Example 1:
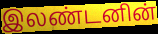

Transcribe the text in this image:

இலண்டனின்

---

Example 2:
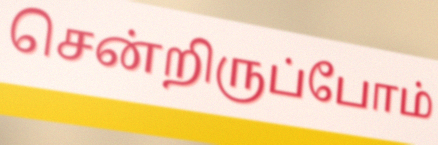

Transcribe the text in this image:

சென்றிருப்போம்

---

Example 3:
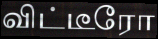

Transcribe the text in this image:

விட்டீரோ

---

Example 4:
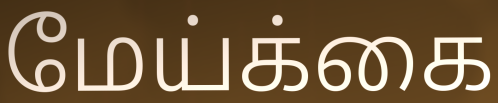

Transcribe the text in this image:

மேய்க்கை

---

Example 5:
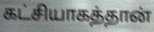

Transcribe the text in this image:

கட்சியாகத்தான்